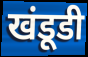
खंडूडी